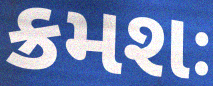
ક્રમશઃ